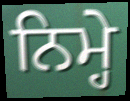
ਨਿਮ੍ਹੇ